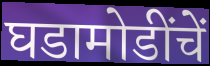
घडामोडींचें